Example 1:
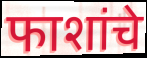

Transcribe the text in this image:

फाशांचे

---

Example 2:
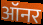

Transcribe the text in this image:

ऑनर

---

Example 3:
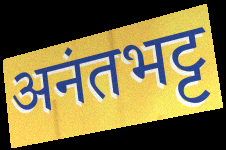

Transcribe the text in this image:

अनंतभट्ट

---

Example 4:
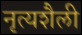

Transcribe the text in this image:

नृत्यशैली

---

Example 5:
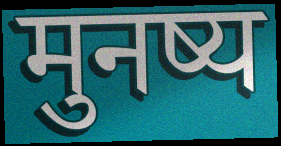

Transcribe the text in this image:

मुनष्य